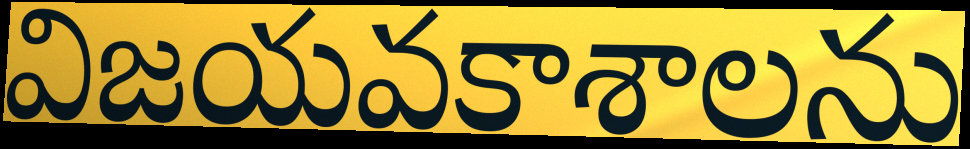
విజయవకాశాలను